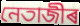
নেতাজীৰ